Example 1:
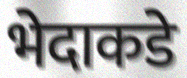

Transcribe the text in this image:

भेदाकडे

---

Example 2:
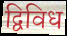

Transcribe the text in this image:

द्विविध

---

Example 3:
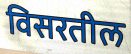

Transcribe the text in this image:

विसरतील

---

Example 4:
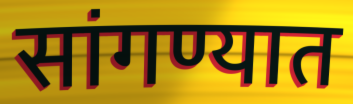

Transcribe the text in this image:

सांगण्यात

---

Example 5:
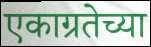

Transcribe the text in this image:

एकाग्रतेच्या